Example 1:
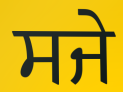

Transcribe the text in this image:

ਸਜੇ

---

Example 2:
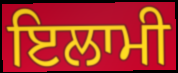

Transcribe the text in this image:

ਇਲਾਮੀ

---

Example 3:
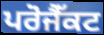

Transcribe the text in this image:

ਪਰੋਜੈੱਕਟ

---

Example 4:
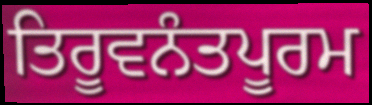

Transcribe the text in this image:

ਤਿਰੂਵਨੰਤਪੂਰਮ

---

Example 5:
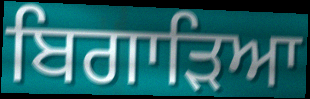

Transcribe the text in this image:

ਬਿਗਾੜਿਆ